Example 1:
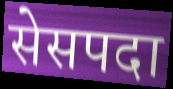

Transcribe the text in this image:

सेसपदा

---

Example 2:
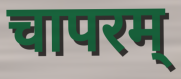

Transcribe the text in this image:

चापरम्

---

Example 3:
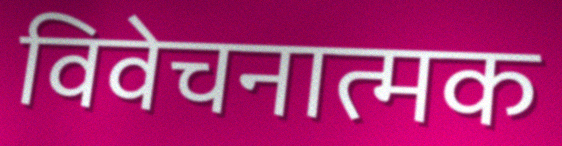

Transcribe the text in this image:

विवेचनात्‍मक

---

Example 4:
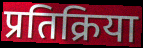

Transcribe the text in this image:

प्रतिक्रिया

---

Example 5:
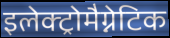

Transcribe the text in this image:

इलेक्ट्रोमैग्नेटिक